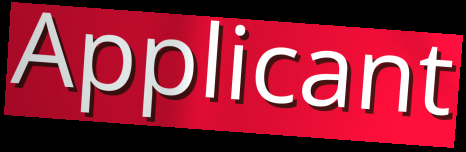
Applicant